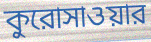
কুরোসাওয়ার